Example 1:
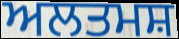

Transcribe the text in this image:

ਅਲਤਮਸ਼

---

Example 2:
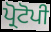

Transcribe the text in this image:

ਪ੍ਰੋਟੋਪੀ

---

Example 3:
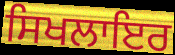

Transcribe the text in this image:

ਸਿਖਲਾਇਰ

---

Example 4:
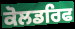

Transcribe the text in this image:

ਕੋਲਡਰਿਫ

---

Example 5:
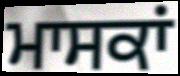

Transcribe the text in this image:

ਮਾਸਕਾਂ